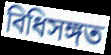
বিধিসঙ্গত